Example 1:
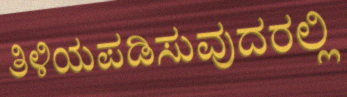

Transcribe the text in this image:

ತಿಳಿಯಪಡಿಸುವುದರಲ್ಲಿ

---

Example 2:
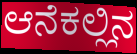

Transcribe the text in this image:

ಆನೆಕಲ್ಲಿನ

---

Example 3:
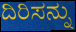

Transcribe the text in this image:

ದಿರಿಸನ್ನು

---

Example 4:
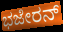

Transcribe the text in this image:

ಭಜೇರನ್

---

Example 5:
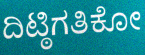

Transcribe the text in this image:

ದಿಟ್ಠಿಗತಿಕೋ